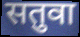
सतुवा